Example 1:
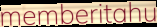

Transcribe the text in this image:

memberitahu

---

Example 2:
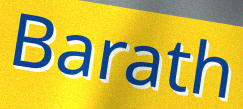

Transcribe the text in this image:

Barath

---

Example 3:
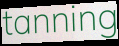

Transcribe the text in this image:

tanning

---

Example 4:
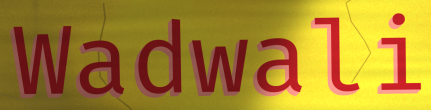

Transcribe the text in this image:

Wadwali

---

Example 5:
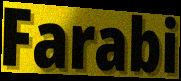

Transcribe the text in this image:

Farabi